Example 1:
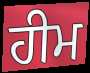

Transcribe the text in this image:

ਹੀਮ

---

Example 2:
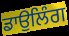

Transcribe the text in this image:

ਡਾਉਲਿੰਗ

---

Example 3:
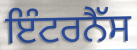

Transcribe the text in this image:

ਇੰਟਰਨੈੱਸ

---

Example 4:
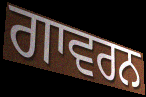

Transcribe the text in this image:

ਗਾਵਰਨ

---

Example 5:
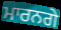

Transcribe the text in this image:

ਮਾਰਨਗੇ